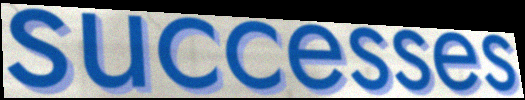
successes